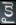
కై